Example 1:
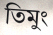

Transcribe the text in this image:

তিমুং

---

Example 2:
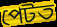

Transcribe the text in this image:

পেটত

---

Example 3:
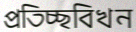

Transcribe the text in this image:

প্ৰতিচ্ছবিখন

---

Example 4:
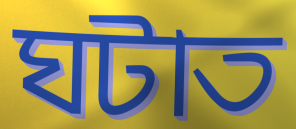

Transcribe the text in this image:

ঘটাত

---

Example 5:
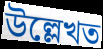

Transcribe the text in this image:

উল্লেখত